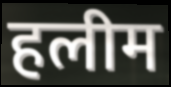
हलीम